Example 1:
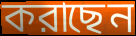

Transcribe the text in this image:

করাছেন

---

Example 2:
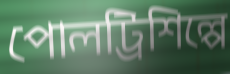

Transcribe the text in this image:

পোলট্রিশিল্পে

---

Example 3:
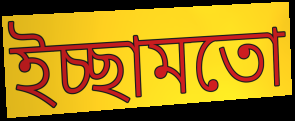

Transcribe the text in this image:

ইচ্ছামতো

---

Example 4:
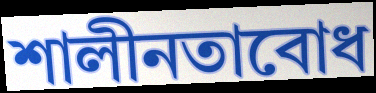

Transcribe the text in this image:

শালীনতাবোধ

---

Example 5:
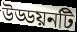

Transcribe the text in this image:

উড্ডয়নটি